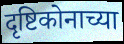
दृष्टिकोनाच्या